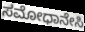
ಸಮೋಧಾನೇಸಿ